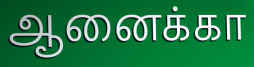
ஆனைக்கா